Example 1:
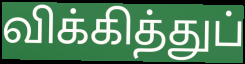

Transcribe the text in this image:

விக்கித்துப்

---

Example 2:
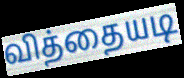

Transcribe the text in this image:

வித்தையடி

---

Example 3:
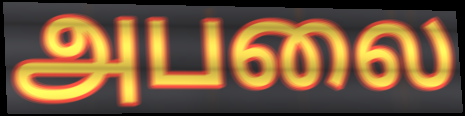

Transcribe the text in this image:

அபலை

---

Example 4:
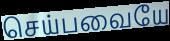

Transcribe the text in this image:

செய்பவையே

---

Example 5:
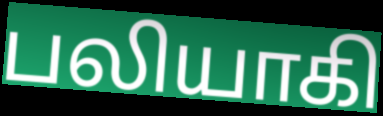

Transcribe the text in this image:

பலியாகி